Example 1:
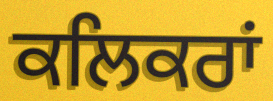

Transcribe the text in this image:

ਕਲਿਕਰਾਂ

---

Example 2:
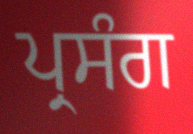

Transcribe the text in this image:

ਪ੍ਰਸੰਗ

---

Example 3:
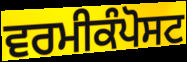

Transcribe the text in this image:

ਵਰਮੀਕੰਪੋਸਟ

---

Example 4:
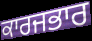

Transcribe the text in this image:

ਕਾਰਜਭਾਰ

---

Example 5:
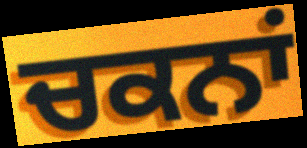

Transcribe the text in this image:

ਚਕਨਾਂ